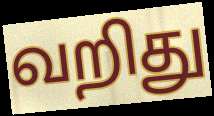
வறிது